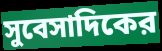
সুবেসাদিকের